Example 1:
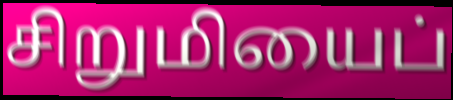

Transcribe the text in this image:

சிறுமியைப்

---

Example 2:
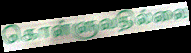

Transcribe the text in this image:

கொள்ளுவதில்லை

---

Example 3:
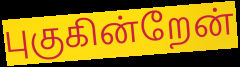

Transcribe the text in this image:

புகுகின்றேன்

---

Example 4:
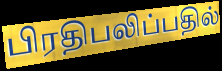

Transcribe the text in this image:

பிரதிபலிப்பதில்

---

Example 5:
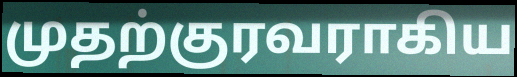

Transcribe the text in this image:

முதற்குரவராகிய